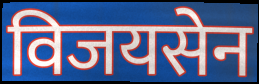
विजयसेन